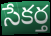
సేకర్త